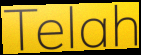
Telah